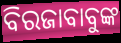
ବିରଜାବାବୁଙ୍କ